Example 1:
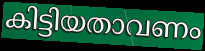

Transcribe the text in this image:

കിട്ടിയതാവണം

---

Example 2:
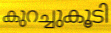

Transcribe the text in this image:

കുറച്ചുകൂടി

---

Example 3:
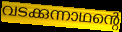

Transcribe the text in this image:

വടക്കുന്നാഥന്റെ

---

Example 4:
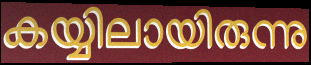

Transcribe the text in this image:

കയ്യിലായിരുന്നു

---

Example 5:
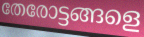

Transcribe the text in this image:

തേരോട്ടങ്ങളെ